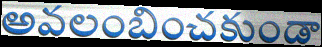
అవలంబించకుండా